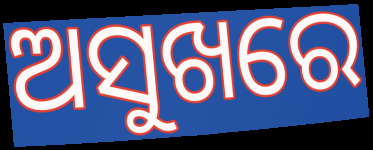
ଅସୁଖରେ